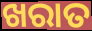
ଖରାତ